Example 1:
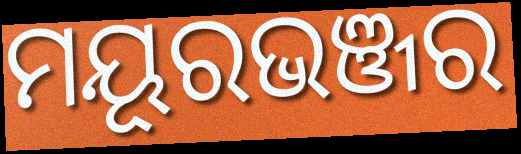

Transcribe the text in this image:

ମୟୂରଭଞ୍ଜର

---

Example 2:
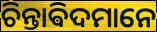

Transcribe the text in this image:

ଚିନ୍ତାଵିଦମାନେ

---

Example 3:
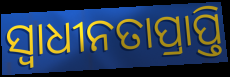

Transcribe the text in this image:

ସ୍ୱାଧୀନତାପ୍ରାପ୍ତି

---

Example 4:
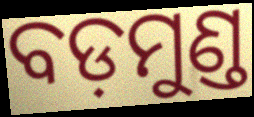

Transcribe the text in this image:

ବଡ଼ମୁଣ୍ଡ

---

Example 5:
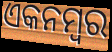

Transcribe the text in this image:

ଏକନମ୍ବର